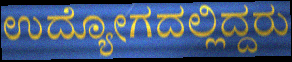
ಉದ್ಯೋಗದಲ್ಲಿದ್ದರು